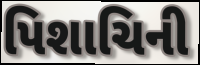
પિશાચિની